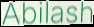
Abilash